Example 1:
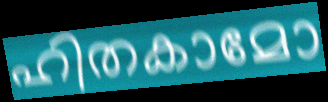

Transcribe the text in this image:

ഹിതകാമോ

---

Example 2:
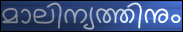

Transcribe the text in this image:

മാലിന്യത്തിനും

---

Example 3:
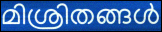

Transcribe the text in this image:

മിശ്രിതങ്ങൾ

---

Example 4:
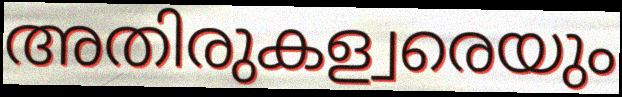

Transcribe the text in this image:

അതിരുകള്വരെയും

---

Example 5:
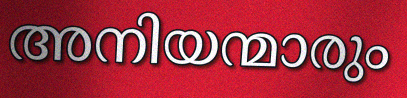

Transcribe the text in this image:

അനിയന്മാരും